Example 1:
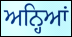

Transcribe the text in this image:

ਅਨ੍ਹਿਆਂ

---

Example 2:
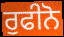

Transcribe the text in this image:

ਰੁਫੀਨੋ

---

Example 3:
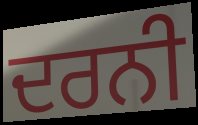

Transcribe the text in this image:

ਦਰਨੀ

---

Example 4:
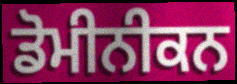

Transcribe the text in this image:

ਡੋਮੀਨੀਕਨ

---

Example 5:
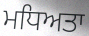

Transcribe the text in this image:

ਮਧਿਅਤਾ